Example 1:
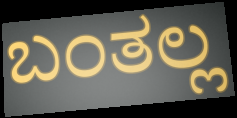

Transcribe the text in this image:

ಬಂತಲ್ಲ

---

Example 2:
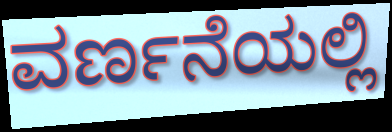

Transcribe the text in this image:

ವರ್ಣನೆಯಲ್ಲಿ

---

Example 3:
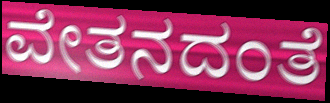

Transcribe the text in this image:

ವೇತನದಂತೆ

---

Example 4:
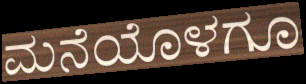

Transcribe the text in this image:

ಮನೆಯೊಳಗೂ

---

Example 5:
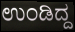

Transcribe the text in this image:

ಉಂಡಿದ್ದ